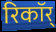
रिकॉर्